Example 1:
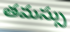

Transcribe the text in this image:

తమస్సు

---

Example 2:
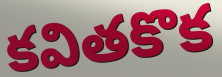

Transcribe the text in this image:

కవితకొక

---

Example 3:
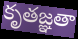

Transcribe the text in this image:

కృతజ్ఞతా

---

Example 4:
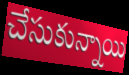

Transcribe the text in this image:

చేసుకున్నాయి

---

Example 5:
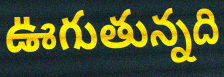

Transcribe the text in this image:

ఊగుతున్నది